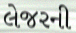
લેજરની